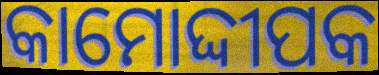
କାମୋଦ୍ଦୀପକ